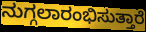
ನುಗ್ಗಲಾರಂಭಿಸುತ್ತಾರೆ